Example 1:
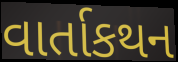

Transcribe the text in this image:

વાર્તાકથન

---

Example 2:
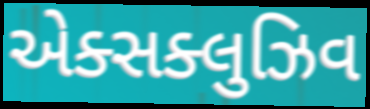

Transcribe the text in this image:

એક્સક્લુઝિવ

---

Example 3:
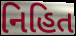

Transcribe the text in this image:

નિહિત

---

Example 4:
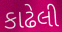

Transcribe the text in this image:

કાઢેલી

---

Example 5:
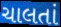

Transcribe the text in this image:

ચાલતાં